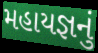
મહાયજ્ઞનું